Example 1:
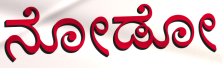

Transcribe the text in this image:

ನೋಡೋ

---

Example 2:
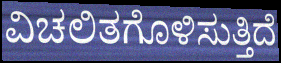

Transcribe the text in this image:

ವಿಚಲಿತಗೊಳಿಸುತ್ತಿದೆ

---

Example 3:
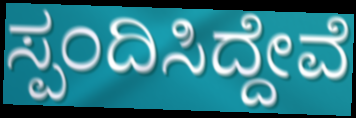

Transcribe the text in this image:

ಸ್ಪಂದಿಸಿದ್ದೇವೆ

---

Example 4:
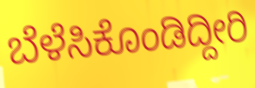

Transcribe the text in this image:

ಬೆಳೆಸಿಕೊಂಡಿದ್ದೀರಿ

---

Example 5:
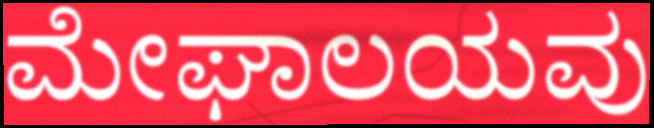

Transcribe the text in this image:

ಮೇಘಾಲಯವು